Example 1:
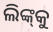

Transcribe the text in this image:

ଲିଙ୍କ୍‌କୁ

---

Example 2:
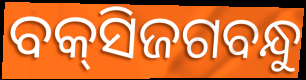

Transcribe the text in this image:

ବକ୍‌ସିଜଗବନ୍ଧୁ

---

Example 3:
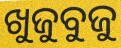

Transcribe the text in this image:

ଖୁଜୁବୁଜୁ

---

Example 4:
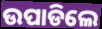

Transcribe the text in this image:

ଉପାଡିଲେ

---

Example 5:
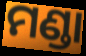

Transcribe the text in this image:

ମଣ୍ଡା